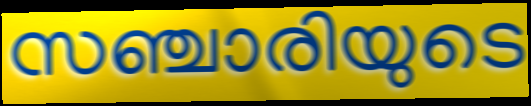
സഞ്ചാരിയുടെ